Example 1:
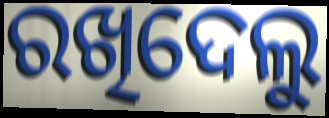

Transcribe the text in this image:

ରଖିଦେଲୁ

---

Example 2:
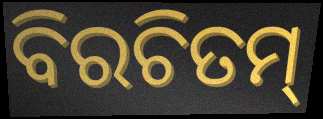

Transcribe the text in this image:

ବିରଚିତମ୍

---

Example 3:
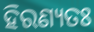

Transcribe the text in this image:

ହିରଣ୍ୟତଃ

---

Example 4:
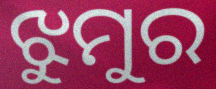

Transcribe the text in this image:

ଝୁମୁର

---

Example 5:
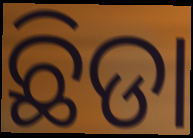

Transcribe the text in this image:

ଛିଡା